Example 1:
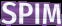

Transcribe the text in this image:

SPIM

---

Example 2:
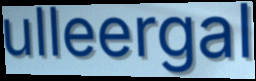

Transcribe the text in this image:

ulleergal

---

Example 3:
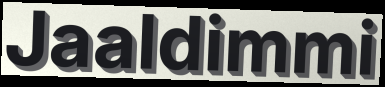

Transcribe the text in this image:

Jaaldimmi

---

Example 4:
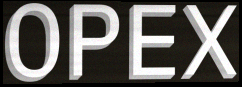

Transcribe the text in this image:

OPEX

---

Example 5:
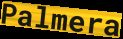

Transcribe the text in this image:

Palmera